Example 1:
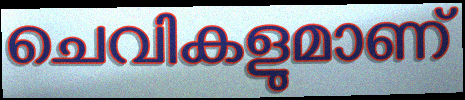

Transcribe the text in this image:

ചെവികളുമാണ്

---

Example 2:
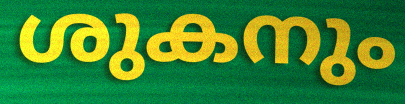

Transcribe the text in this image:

ശുകനും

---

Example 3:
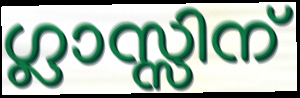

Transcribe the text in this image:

ഗ്ലാസ്സിന്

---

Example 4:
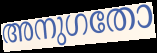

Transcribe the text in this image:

അനുഗതോ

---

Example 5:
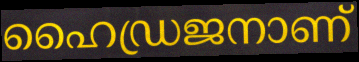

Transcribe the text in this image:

ഹൈഡ്രജനാണ്